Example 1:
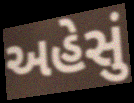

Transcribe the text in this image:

અહેસું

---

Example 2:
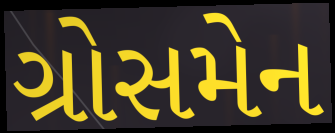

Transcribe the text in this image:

ગ્રોસમેન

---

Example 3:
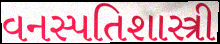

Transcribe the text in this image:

વનસ્પતિશાસ્ત્રી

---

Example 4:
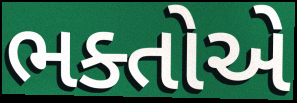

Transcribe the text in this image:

ભક્તોએ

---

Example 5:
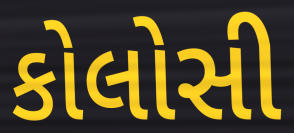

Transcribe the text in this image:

કોલોસી